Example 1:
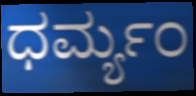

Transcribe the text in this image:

ಧರ್ಮ್ಯಂ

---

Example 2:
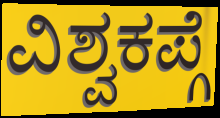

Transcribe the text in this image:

ವಿಶ್ವಕಪ್ಗೆ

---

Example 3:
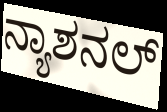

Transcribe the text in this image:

ನ್ಯಾಶನಲ್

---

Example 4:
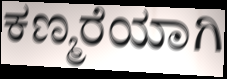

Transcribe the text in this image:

ಕಣ್ಮರೆಯಾಗಿ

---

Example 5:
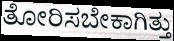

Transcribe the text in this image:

ತೋರಿಸಬೇಕಾಗಿತ್ತು